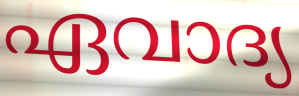
ഏവാദ്യ